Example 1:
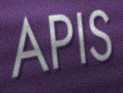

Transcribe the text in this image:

APIS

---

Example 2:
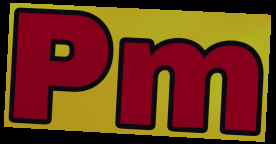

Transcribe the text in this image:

Pm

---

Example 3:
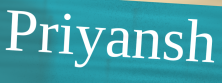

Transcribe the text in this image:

Priyansh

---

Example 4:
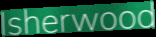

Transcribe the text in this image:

Isherwood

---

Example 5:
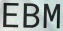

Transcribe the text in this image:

EBM